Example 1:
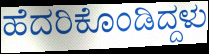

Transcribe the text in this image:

ಹೆದರಿಕೊಂಡಿದ್ದಳು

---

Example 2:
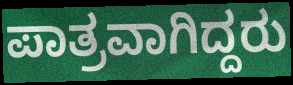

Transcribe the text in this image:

ಪಾತ್ರವಾಗಿದ್ದರು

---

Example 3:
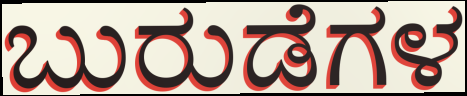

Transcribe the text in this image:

ಬುರುಡೆಗಳ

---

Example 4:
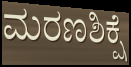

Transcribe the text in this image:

ಮರಣಶಿಕ್ಷೆ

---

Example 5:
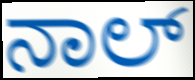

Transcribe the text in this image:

ನಾಲ್